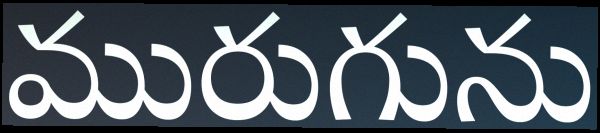
మురుగును